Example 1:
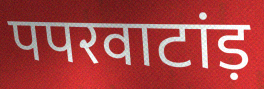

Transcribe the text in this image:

पपरवाटांड़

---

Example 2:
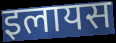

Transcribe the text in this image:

इलायस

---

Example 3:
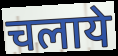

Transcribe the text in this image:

चलाये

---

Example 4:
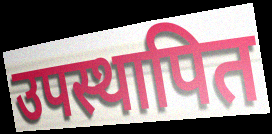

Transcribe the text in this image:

उपस्थापित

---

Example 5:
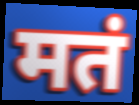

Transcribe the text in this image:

मतं